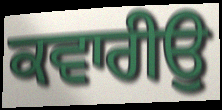
ਕਵਾਰੀਉ